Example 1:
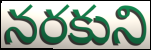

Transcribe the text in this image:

నరకుని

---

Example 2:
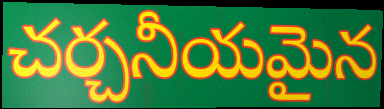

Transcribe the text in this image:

చర్చనీయమైన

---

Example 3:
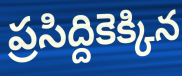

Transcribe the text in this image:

ప్రసిద్దికెక్కిన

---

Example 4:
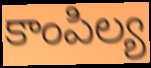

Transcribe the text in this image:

కాంపిల్య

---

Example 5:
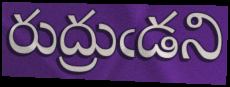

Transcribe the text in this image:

రుద్రుఁడని